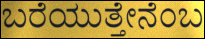
ಬರೆಯುತ್ತೇನೆಂಬ